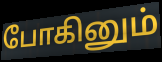
போகினும்